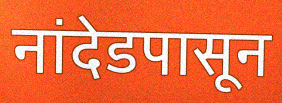
नांदेडपासून